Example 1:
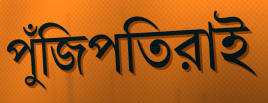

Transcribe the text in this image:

পুঁজিপতিরাই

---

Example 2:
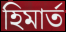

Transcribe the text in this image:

হিমার্ত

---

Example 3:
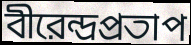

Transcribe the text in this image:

বীরেন্দ্রপ্রতাপ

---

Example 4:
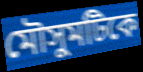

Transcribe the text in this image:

মৌসুমটিকে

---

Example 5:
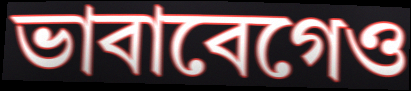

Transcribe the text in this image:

ভাবাবেগেও